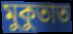
মুকুতাত